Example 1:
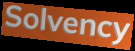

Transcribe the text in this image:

Solvency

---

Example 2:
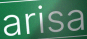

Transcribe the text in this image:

arisa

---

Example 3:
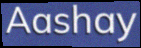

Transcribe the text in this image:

Aashay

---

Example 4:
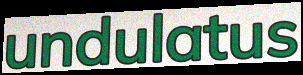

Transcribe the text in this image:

undulatus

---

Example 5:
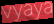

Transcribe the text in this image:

vyaya